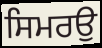
ਸਿਮਰਉ